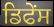
ਡਿਫੇਂਸ